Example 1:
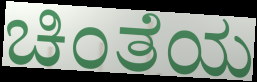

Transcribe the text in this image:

ಚಿಂತೆಯ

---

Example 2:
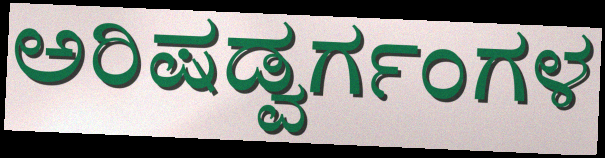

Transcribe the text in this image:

ಅರಿಷಡ್ವರ್ಗಂಗಳ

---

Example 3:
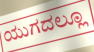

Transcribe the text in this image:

ಯುಗದಲ್ಲೂ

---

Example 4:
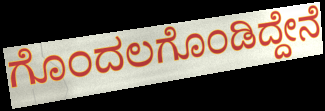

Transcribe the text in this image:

ಗೊಂದಲಗೊಂಡಿದ್ದೇನೆ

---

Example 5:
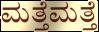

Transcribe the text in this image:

ಮತ್ತೆಮತ್ತೆ